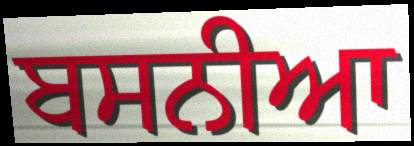
ਬਸਨੀਆ